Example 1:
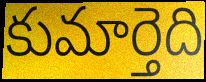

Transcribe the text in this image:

కుమార్తెది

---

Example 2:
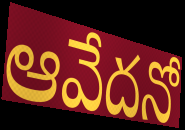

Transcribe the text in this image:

ఆవేదనో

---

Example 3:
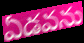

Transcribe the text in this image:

ఏడవను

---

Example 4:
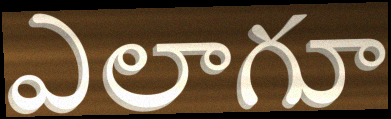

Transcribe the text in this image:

ఎలాగూ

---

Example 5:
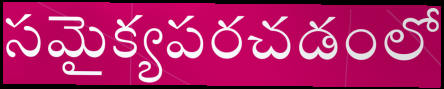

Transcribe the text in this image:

సమైక్యపరచడంలో